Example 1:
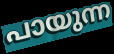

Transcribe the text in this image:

പായുന്ന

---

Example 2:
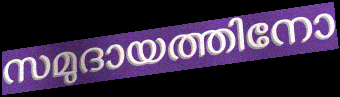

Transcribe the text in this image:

സമുദായത്തിനോ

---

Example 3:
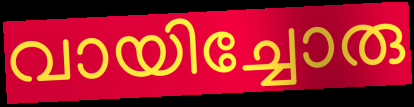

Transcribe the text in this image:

വായിച്ചോരു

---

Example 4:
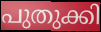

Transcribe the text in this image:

പുതുക്കി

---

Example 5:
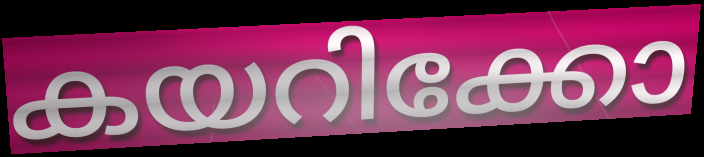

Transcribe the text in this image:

കയറിക്കോ